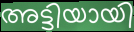
അട്ടിയായി